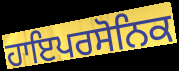
ਹਾਇਪਰਸੋਨਿਕ